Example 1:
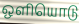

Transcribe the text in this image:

ஒளியொடு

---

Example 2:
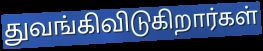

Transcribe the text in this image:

துவங்கிவிடுகிறார்கள்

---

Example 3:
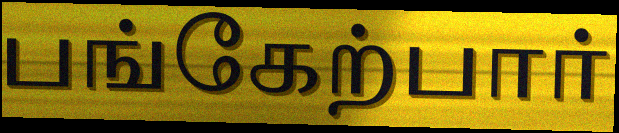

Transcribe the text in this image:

பங்கேற்பார்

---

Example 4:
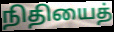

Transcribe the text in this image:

நிதியைத்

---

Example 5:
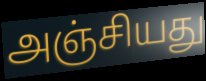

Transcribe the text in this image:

அஞ்சியது